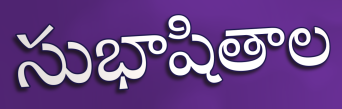
సుభాషితాల